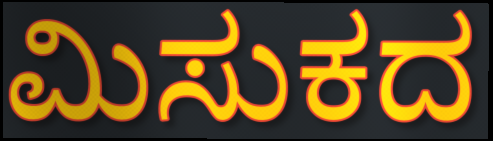
ಮಿಸುಕದ